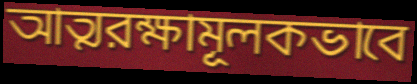
আত্মরক্ষামূলকভাবে